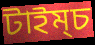
টাইম্‌চ